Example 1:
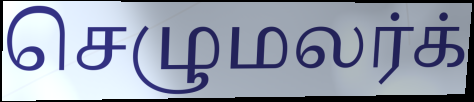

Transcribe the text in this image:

செழுமலர்க்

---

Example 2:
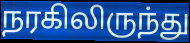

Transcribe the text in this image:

நரகிலிருந்து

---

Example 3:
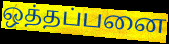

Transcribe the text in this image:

ஒத்தப்பனை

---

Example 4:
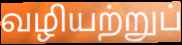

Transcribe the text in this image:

வழியற்றுப்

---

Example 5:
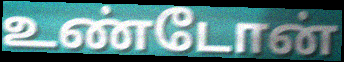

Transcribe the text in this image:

உண்டோன்